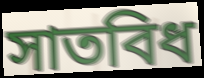
সাতবিধ